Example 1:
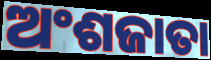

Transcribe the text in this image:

ଅଂଶଜାତା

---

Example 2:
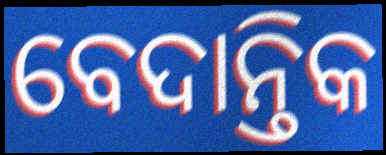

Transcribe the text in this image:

ବେଦାନ୍ତିକ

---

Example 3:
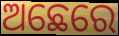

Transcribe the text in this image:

ଅଛେରେ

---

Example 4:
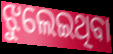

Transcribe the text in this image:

ଝୁଲେଇଥିବା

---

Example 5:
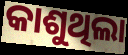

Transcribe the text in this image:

କାଶୁଥିଲା